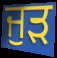
ਜੁੜ